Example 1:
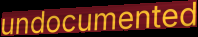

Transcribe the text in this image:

undocumented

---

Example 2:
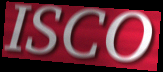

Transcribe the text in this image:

ISCO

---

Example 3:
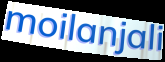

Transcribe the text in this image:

moilanjali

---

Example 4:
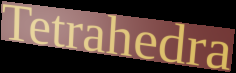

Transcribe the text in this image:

Tetrahedra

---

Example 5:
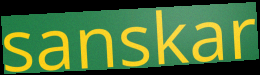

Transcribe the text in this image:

sanskar